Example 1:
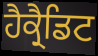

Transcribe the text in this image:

ਹੈਕ੍ਰੈਡਿਟ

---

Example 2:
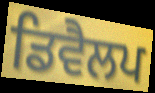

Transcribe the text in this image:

ਡਿਵੈਲਪ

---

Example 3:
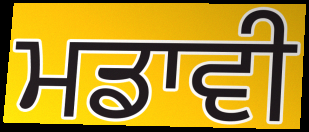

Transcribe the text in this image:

ਮਡਾਵੀ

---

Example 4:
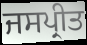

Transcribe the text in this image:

ਜਸਪ੍ਰੀਤ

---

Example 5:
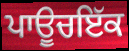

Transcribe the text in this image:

ਪਾਊਚਇੱਕ